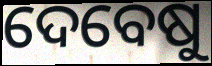
ଦେବେଷୁ